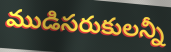
ముడిసరుకులన్నీ